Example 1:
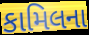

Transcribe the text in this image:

કામિલના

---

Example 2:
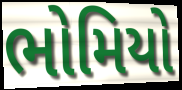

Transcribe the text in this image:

ભોમિયો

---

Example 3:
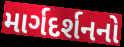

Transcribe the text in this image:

માર્ગદર્શનનો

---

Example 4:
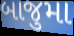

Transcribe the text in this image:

બાજુમા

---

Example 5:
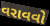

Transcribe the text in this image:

વરાવવો